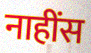
नाहींस